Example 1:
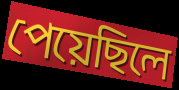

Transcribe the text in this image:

পেয়েছিলে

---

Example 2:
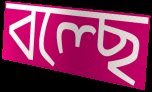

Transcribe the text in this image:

বল্ছে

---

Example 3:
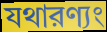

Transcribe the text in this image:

যথারণ্যং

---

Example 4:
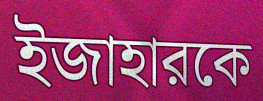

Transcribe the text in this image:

ইজাহারকে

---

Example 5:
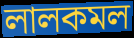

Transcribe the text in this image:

লালকমল